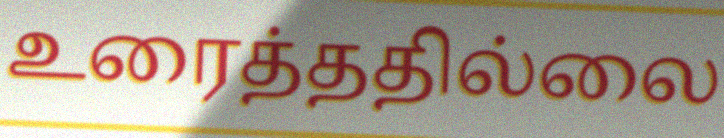
உரைத்ததில்லை